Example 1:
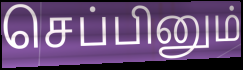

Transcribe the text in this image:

செப்பினும்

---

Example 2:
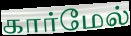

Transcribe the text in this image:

கார்மேல்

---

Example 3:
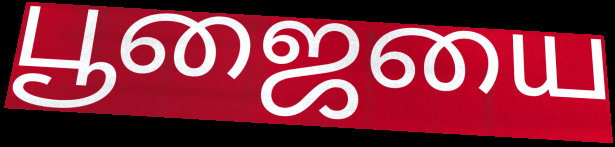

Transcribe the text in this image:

பூஜையை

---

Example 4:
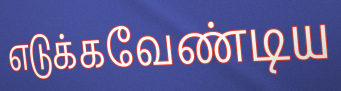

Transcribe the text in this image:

எடுக்கவேண்டிய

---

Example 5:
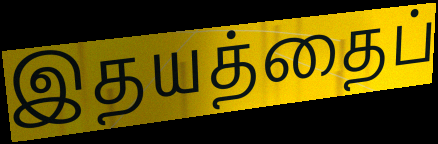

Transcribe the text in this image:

இதயத்தைப்